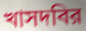
খাসদবির